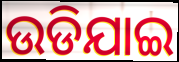
ଉଡିଯାଇ